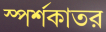
স্পর্শকাতর